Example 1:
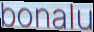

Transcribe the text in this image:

bonalu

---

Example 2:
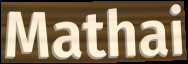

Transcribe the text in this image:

Mathai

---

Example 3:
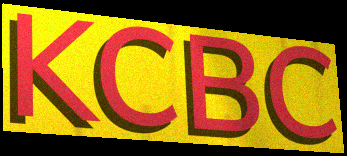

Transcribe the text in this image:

KCBC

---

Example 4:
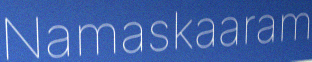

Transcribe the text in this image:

Namaskaaram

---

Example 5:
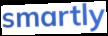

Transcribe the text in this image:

smartly